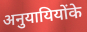
अनुयायियोंके